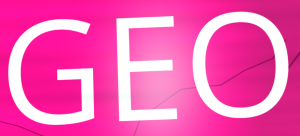
GEO